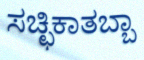
ಸಚ್ಛಿಕಾತಬ್ಬಾ